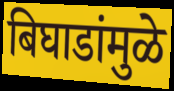
बिघाडांमुळे